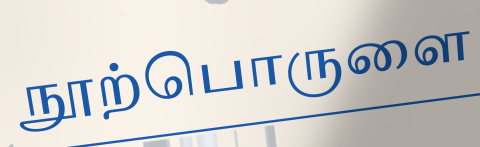
நூற்பொருளை